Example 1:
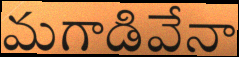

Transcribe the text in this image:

మగాడివేనా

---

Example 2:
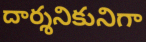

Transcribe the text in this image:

దార్శనికునిగా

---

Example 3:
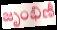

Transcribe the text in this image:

జృంభిణీ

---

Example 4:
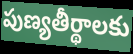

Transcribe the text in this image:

పుణ్యతీర్థాలకు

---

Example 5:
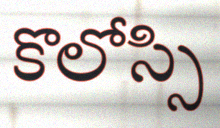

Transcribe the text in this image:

కొలోస్సి